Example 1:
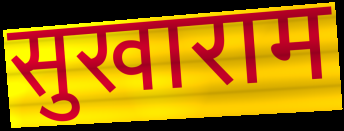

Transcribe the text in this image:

सुखाराम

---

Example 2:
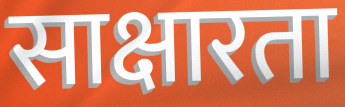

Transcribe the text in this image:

साक्षारता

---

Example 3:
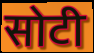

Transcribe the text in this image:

सोटी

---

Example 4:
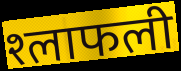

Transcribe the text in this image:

श्लाफली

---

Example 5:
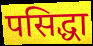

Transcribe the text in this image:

पसिद्धा